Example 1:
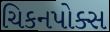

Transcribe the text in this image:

ચિકનપોક્સ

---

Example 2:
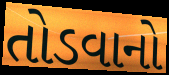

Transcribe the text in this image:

તોડવાનો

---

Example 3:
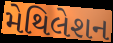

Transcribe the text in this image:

મેથિલેશન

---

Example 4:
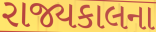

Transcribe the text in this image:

રાજ્યકાલના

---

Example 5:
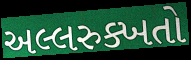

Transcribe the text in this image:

અલ્લરુક્ખતો